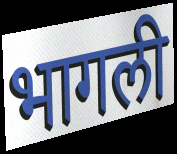
भागली